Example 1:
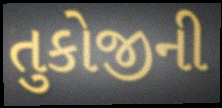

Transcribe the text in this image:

તુકોજીની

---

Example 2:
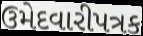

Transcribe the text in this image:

ઉમેદવારીપત્રક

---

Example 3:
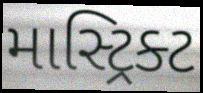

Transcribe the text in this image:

માસ્ટ્રિક્ટ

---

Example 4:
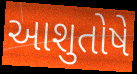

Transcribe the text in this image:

આશુતોષે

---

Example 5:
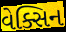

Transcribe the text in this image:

વેક્સિન